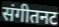
संगीतनट